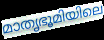
മാതൃഭൂമിയിലെ